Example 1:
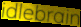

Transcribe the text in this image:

idlebrain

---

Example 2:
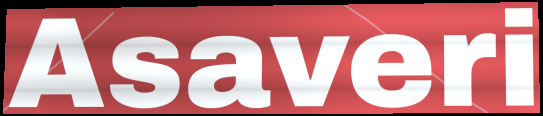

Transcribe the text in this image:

Asaveri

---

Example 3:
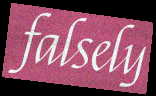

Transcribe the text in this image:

falsely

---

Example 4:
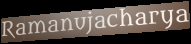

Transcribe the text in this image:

Ramanujacharya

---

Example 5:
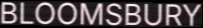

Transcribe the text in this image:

BLOOMSBURY